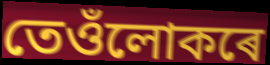
তেওঁলোকৰে